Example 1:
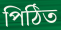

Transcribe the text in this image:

পিঠিত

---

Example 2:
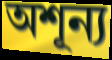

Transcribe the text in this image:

অশূন্য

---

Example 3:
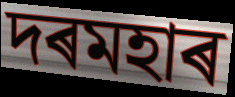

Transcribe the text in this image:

দৰমহাৰ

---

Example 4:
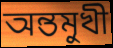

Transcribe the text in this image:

অন্তমুখী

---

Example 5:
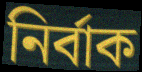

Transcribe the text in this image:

নিৰ্বাক